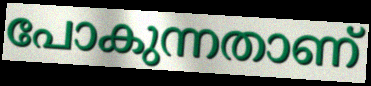
പോകുന്നതാണ്